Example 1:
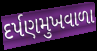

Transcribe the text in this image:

દર્પણમુખવાળા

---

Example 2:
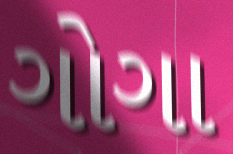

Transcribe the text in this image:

ગોગા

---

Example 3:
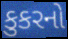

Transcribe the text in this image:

કુકરનો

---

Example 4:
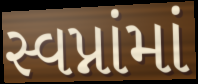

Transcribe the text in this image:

સ્વપ્નાંમાં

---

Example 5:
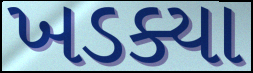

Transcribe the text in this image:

ખડક્યા